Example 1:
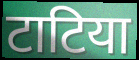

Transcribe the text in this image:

टाटिया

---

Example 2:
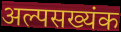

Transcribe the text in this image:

अल्पसख्यंक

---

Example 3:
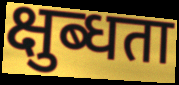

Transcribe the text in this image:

क्षुब्धता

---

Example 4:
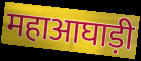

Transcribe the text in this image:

महाआघाड़ी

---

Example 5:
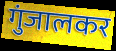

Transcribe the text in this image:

गुंजालकर